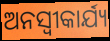
ଅନସ୍ୱୀକାର୍ଯ୍ୟ